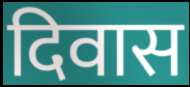
दिवास